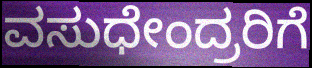
ವಸುಧೇಂದ್ರರಿಗೆ